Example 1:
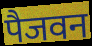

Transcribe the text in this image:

पैजवन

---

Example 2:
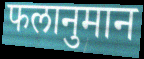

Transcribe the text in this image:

फलानुमान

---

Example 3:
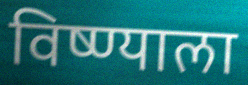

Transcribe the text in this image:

विष्ण्याला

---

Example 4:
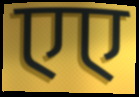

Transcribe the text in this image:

एए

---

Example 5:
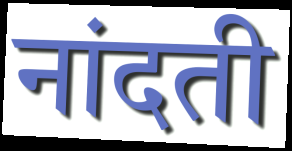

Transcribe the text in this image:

नांदती